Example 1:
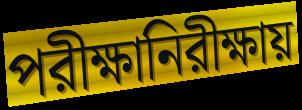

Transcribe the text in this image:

পরীক্ষানিরীক্ষায়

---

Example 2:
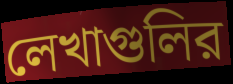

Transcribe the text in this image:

লেখাগুলির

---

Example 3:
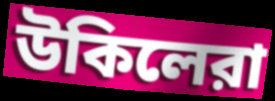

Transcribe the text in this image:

উকিলেরা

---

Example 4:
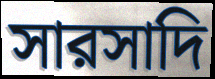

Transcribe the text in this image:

সারসাদি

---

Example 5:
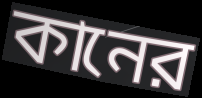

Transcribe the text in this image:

কানের